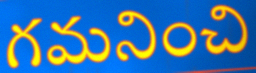
గమనించి